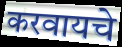
करवायचे